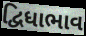
દ્વિધાભાવ